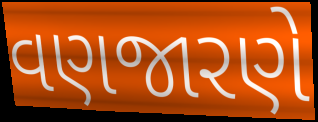
વણજારણે